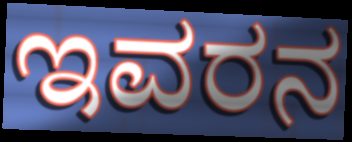
ಇವರನ